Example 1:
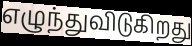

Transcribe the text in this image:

எழுந்துவிடுகிறது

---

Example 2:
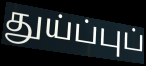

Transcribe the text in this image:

துய்ப்புப்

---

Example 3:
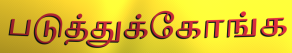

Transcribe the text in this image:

படுத்துக்கோங்க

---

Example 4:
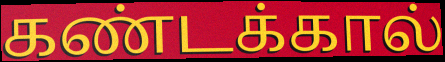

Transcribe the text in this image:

கண்டக்கால்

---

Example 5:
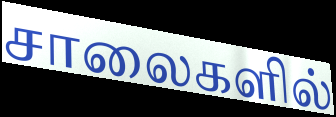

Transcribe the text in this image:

சாலைகளில்